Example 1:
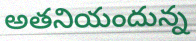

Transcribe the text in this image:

అతనియందున్న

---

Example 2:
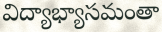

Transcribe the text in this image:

విద్యాభ్యాసమంతా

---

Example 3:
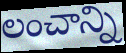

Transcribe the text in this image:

లంచాన్ని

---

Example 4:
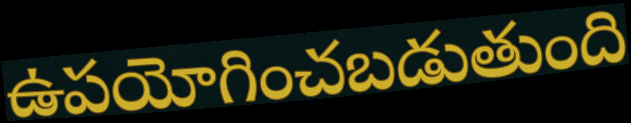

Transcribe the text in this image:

ఉపయోగించబడుతుంది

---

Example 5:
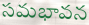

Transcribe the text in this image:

సమభావన